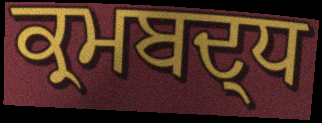
ਕ੍ਰਮਬਦ੍ਧ